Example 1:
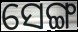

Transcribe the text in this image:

ସେଙ୍ଗ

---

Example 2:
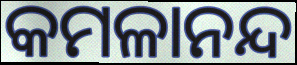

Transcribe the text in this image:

କମଳାନନ୍ଦ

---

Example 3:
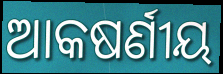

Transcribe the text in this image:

ଆକଷର୍ଣୀୟ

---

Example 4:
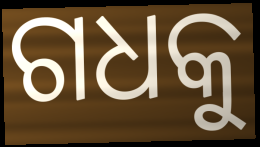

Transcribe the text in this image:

ଗଧକୁ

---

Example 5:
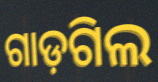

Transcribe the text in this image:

ଗାଡ଼ଗିଲ